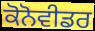
ਕੋਨੋਵੀਡਰ